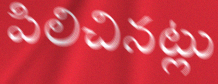
పిలిచినట్లు